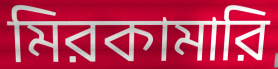
মিরকামারি